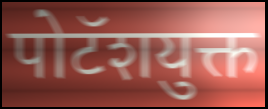
पोटॅशयुक्त